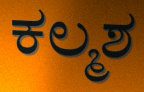
ಕಲ್ಮಶ